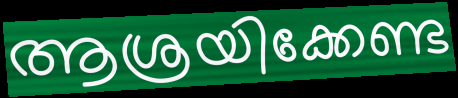
ആശ്രയിക്കേണ്ട